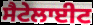
ਸੈਟੇਲਾਈਟ